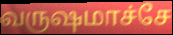
வருஷமாச்சே